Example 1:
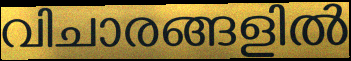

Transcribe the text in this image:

വിചാരങ്ങളിൽ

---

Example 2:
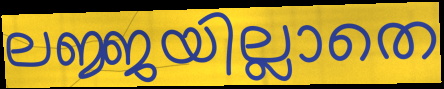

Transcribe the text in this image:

ലജ്ജയില്ലാതെ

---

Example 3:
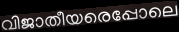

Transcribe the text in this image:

വിജാതീയരെപ്പോലെ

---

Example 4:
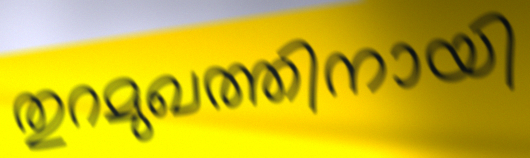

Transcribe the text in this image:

തുറമുഖത്തിനായി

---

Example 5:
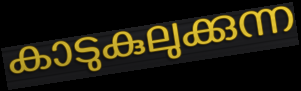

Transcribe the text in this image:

കാടുകുലുക്കുന്ന